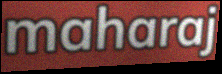
maharaj